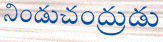
నిండుచంద్రుడు